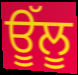
ਊੱਲੂ